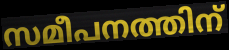
സമീപനത്തിന്